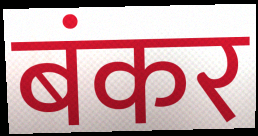
बंकर